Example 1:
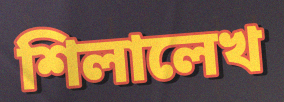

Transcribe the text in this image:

শিলালেখ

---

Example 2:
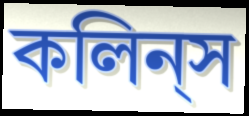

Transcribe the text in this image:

কলিন্‌স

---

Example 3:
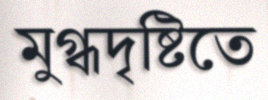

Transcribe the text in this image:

মুগ্ধদৃষ্টিতে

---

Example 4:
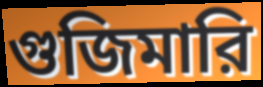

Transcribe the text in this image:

গুজিমারি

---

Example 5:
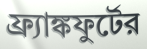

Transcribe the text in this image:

ফ্র্যাঙ্কফুর্টের